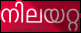
നിലയറ്റ